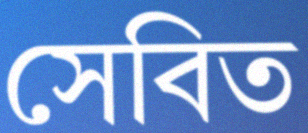
সেবিত